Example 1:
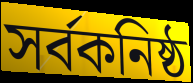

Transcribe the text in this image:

সর্বকনিষ্ঠ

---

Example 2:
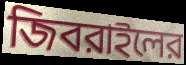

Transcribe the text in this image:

জিবরাইলের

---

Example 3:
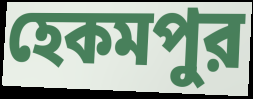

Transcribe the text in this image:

হেকমপুর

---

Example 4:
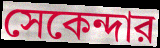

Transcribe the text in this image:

সেকেন্দার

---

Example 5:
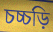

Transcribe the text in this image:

চচ্চড়ি